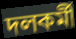
দলকর্মী